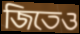
জিতেও